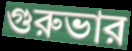
গুরুভার